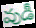
వుడీ